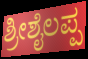
ಶ್ರೀಶೈಲಪ್ಪ